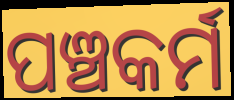
ପଞ୍ଚକର୍ମ